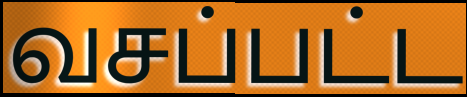
வசப்பட்ட